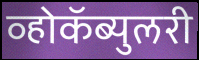
व्होकॅब्युलरी